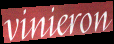
vinieron